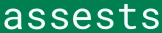
assests